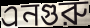
এনগুরু